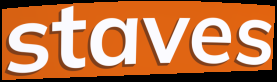
staves